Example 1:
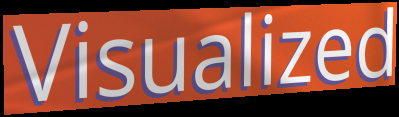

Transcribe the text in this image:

Visualized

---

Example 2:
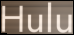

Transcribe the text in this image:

Hulu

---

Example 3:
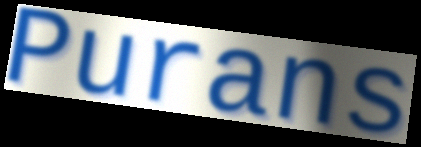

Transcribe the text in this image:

Purans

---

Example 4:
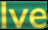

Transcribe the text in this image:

Ive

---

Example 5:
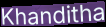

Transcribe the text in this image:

Khanditha